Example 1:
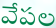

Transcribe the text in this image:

వేపల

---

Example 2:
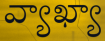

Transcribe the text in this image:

వ్యాఖ్యా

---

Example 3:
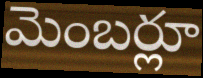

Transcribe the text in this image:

మెంబర్లూ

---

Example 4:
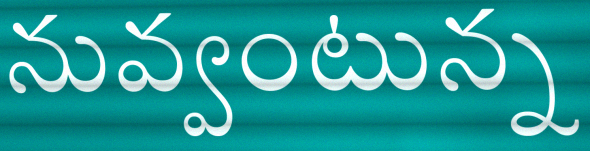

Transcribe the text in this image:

నువ్వంటున్న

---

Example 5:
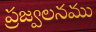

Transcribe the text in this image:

ప్రజ్వలనము